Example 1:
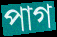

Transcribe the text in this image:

পাগ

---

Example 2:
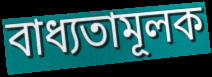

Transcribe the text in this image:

বাধ্যতামূলক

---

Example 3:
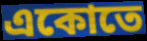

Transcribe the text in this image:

একোতে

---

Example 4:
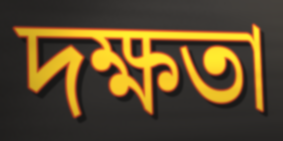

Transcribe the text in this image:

দক্ষতা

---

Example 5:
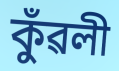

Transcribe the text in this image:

কুঁৱলী